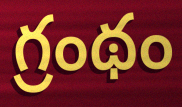
గ్రంథం